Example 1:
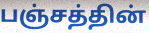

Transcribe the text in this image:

பஞ்சத்தின்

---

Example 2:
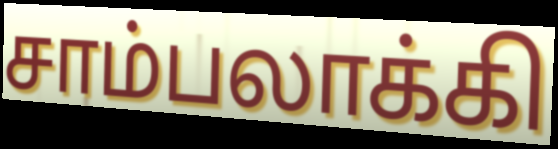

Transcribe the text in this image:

சாம்பலாக்கி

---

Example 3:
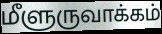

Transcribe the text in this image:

மீளுருவாக்கம்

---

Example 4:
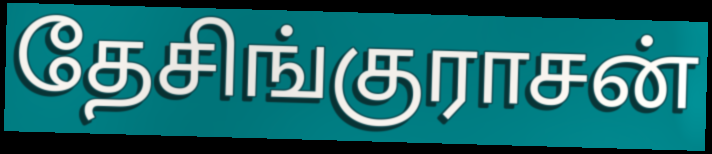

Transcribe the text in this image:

தேசிங்குராசன்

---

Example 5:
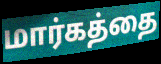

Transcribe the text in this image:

மார்கத்தை